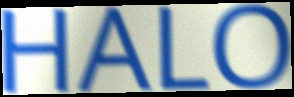
HALO